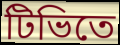
টিভিতে